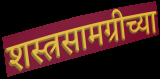
शस्त्रसामग्रीच्या